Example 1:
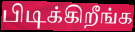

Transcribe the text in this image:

பிடிக்கிறீங்க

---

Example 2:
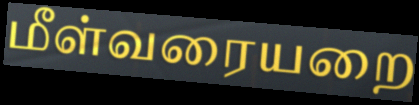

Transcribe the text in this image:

மீள்வரையறை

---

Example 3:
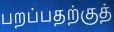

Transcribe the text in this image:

பறப்பதற்குத்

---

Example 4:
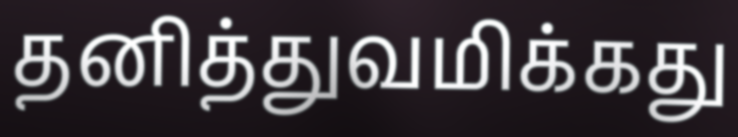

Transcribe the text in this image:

தனித்துவமிக்கது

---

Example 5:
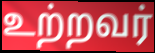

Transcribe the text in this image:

உற்றவர்